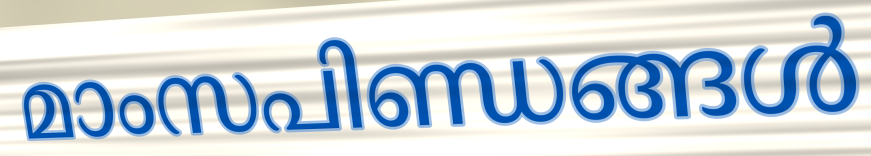
മാംസപിണ്ഡങ്ങൾ